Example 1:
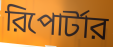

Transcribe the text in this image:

রিপোর্টার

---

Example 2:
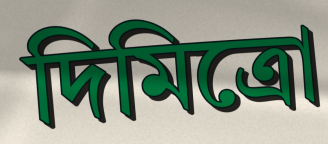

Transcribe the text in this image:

দিমিত্রো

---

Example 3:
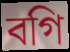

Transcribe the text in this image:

বগি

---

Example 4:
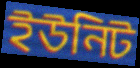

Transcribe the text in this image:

ইউনিট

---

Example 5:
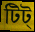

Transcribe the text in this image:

টিট্